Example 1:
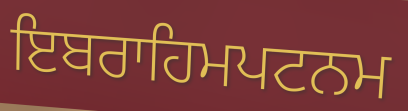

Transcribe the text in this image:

ਇਬਰਾਹਿਮਪਟਨਮ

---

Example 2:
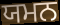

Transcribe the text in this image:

ਯਮਨ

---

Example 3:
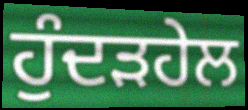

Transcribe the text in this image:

ਹੁੰਦੜਹੇਲ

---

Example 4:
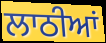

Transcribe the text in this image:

ਲਾਠੀਆਂ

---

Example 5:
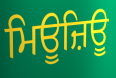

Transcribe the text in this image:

ਮਿਊਜ਼ਿਊ